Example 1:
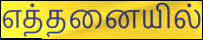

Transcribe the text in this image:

எத்தனையில்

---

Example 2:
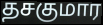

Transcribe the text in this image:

தசகுமார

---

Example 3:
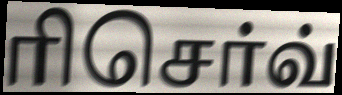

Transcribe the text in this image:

ரிசெர்வ்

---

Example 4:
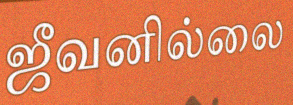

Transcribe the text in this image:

ஜீவனில்லை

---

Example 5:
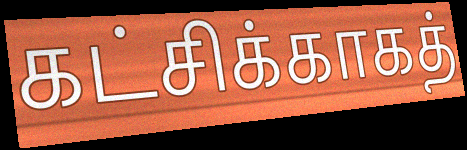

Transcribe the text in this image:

கட்சிக்காகத்